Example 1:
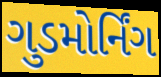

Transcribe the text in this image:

ગુડમોર્નિંગ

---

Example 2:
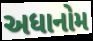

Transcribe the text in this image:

અધાનોમ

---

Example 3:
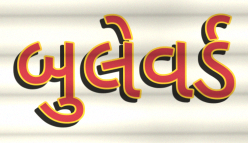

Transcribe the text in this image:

બુલેવર્ડ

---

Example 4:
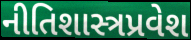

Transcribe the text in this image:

નીતિશાસ્ત્રપ્રવેશ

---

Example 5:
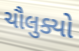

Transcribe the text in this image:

ચૌલુક્યો